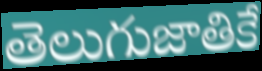
తెలుగుజాతికే